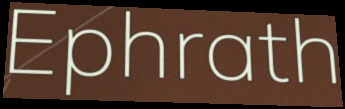
Ephrath